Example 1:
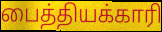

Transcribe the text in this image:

பைத்தியக்காரி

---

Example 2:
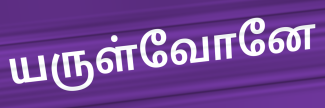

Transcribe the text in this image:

யருள்வோனே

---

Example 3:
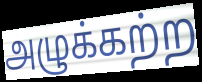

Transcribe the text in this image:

அழுக்கற்ற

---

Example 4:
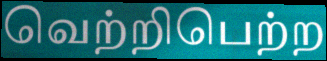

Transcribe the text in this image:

வெற்றிபெற்ற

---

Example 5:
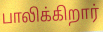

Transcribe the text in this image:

பாலிக்கிறார்